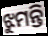
ଝୁମନ୍ତି